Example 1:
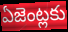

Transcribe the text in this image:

ఏజెంట్లకు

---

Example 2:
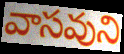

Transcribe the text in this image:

వాసవుని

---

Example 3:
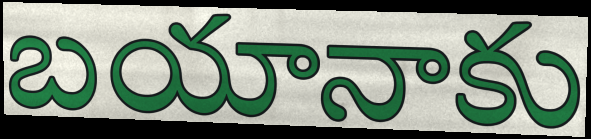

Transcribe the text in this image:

బయానాకు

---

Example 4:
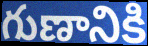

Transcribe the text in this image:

గుణానికి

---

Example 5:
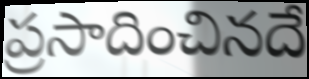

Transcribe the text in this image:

ప్రసాదించినదే